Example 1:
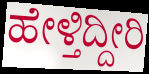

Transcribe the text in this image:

ಹೇಳ್ತಿದ್ದೀರಿ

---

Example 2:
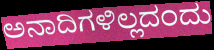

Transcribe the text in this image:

ಅನಾದಿಗಳಿಲ್ಲದಂದು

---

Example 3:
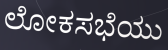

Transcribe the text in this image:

ಲೋಕಸಭೆಯು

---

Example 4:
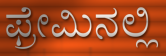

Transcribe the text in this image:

ಫ್ರೇಮಿನಲ್ಲಿ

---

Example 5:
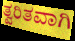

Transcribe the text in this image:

ತ್ವರಿತವಾಗಿ